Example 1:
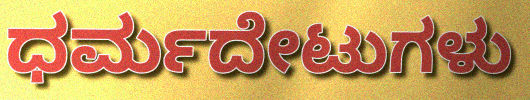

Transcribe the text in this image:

ಧರ್ಮದೇಟುಗಳು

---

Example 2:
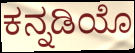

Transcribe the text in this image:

ಕನ್ನಡಿಯೊ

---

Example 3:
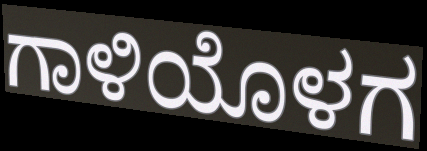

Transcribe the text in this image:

ಗಾಳಿಯೊಳಗ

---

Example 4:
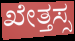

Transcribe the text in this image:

ಖೇತ್ತಸ್ಸ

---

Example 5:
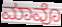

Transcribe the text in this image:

ಮಾವೊ